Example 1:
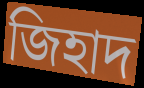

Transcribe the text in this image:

জিহাদ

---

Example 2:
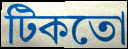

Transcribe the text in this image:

টিকতো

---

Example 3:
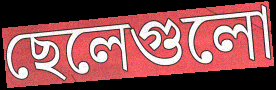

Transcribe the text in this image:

ছেলেগুলো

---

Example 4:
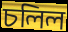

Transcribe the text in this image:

চলিল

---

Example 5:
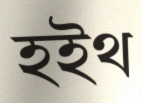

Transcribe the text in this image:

হইথ